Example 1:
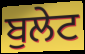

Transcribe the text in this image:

ਬੁਲੇਟ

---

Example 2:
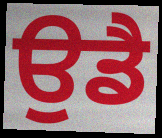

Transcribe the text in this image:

ਉਡੈ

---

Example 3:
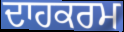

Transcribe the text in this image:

ਦਾਹਕਰਮ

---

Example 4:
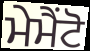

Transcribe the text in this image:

ਮੇਮੈਂਟੋ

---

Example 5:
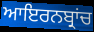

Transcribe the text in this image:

ਆਇਰਨਬ੍ਰਾਂਚ